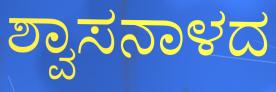
ಶ್ವಾಸನಾಳದ